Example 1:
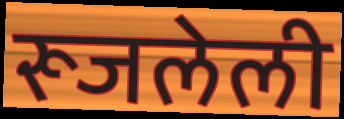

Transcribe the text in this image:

रूजलेली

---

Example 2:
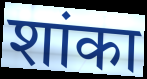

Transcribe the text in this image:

शांका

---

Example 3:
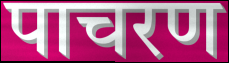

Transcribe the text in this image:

पाचरण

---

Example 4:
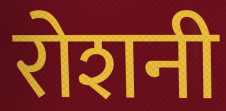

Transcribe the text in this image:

रोशनी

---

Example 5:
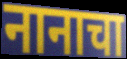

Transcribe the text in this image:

नानाचा